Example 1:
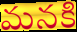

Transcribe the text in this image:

మనకి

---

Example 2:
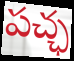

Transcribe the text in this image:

పచ్ఛ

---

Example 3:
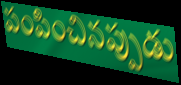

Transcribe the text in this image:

పంపించినప్పుడు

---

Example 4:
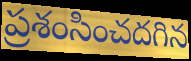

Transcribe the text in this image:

ప్రశంసించదగిన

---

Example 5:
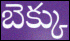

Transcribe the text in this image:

బెక్కు